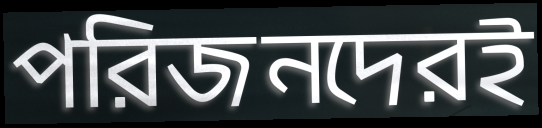
পরিজনদেরই